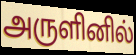
அருளினில்